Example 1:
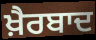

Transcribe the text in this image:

ਖ਼ੈਰਬਾਦ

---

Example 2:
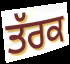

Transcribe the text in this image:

ਤੱਰਕ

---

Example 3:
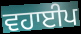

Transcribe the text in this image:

ਵਹਾਈਪ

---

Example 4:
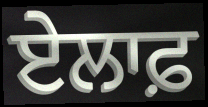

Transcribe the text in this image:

ਏਲਾਫ਼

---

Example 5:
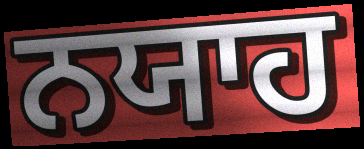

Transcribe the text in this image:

ਨਯਾਹ